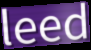
leed